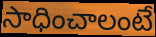
సాధించాలంటే